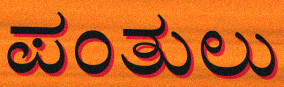
ಪಂತುಲು